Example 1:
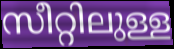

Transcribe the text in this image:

സീറ്റിലുള്ള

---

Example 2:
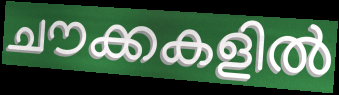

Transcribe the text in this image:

ചൗക്കകളിൽ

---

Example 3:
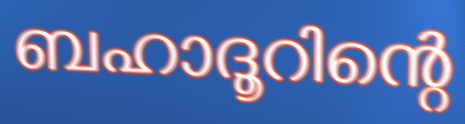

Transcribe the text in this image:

ബഹാദൂറിന്റെ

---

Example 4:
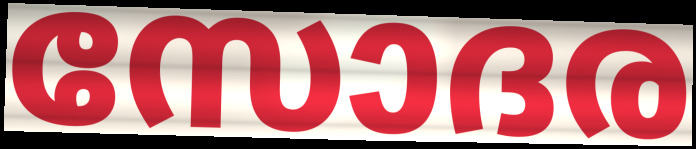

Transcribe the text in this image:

സോദര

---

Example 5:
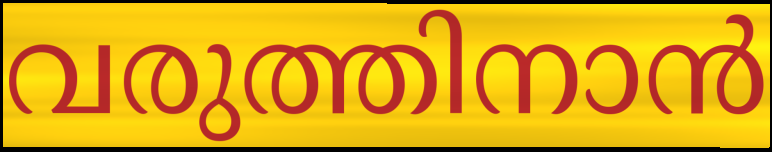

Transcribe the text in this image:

വരുത്തിനാൻ